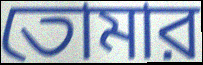
তোমার